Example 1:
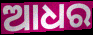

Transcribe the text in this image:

ଆଧର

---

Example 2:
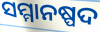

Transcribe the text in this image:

ସମ୍ମାନଷ୍ପଦ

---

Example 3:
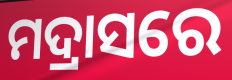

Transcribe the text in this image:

ମଦ୍ରାସରେ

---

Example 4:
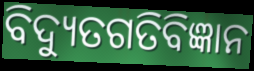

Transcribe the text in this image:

ବିଦ୍ୟୁତଗତିବିଜ୍ଞାନ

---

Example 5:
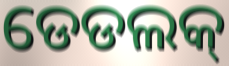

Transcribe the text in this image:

ଡେଡଲକ୍